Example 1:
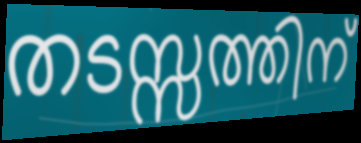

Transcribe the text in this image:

തടസ്സത്തിന്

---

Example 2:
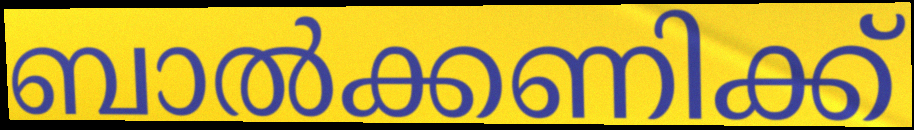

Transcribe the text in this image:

ബാൽക്കണിക്ക്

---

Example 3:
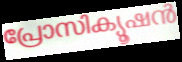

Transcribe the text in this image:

പ്രോസിക്യൂഷൻ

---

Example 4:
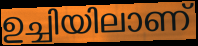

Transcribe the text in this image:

ഉച്ചിയിലാണ്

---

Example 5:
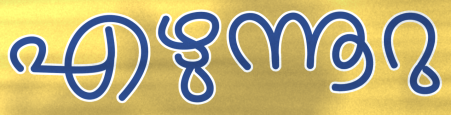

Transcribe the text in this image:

എഴുന്നൂറു